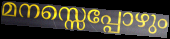
മനസ്സെപ്പോഴും